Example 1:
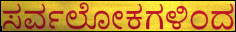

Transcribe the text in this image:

ಸರ್ವಲೋಕಗಳಿಂದ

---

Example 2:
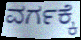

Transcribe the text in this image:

ವರ್ಗಕ್ಕೆ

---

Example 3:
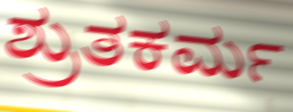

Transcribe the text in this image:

ಶ್ರುತಕರ್ಮ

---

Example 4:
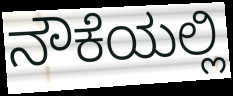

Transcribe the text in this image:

ನೌಕೆಯಲ್ಲಿ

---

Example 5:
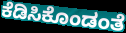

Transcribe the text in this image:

ಕೆಡಿಸಿಕೊಂಡಂತೆ